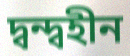
দ্বন্দ্বহীন